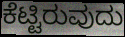
ಕೆಟ್ಟಿರುವುದು